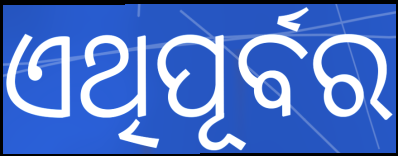
ଏଥିପୂର୍ବର